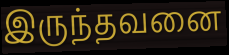
இருந்தவனை